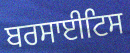
ਬਰਸਾਈਟਿਸ